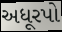
અધૂરપો